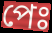
পেঃ